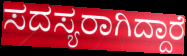
ಸದಸ್ಯರಾಗಿದ್ದಾರೆ